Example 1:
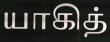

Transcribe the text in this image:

யாகித்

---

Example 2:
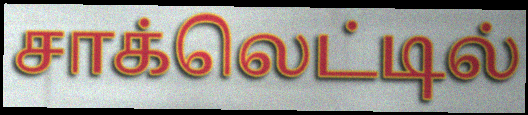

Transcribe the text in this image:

சாக்லெட்டில்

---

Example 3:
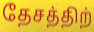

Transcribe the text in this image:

தேசத்திற்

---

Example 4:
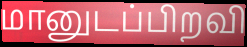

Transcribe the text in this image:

மானுடப்பிறவி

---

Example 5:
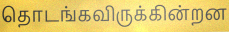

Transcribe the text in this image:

தொடங்கவிருக்கின்றன